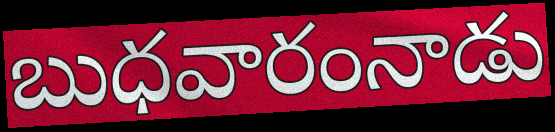
బుధవారంనాడు